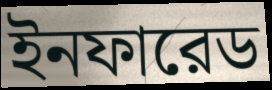
ইনফারেড